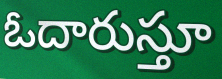
ఓదారుస్తూ